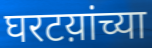
घरटय़ांच्या